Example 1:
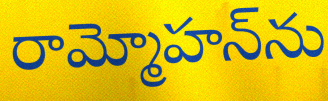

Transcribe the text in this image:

రామ్మోహన్‌ను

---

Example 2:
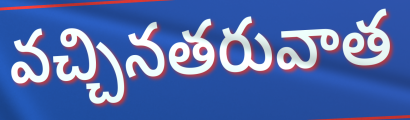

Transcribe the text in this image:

వచ్చినతరువాత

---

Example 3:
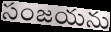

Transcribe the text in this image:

సంజయను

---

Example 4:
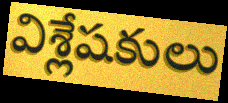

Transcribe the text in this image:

విశ్లేషకులు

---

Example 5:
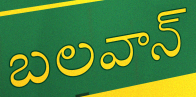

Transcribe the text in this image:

బలవాన్